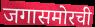
जगासमोरची